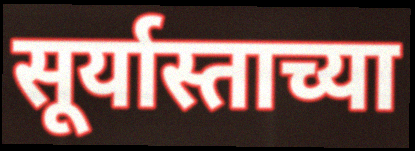
सूर्यास्ताच्या